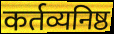
कर्तव्यनिष्ठ